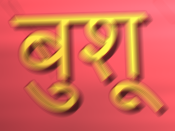
बुशू